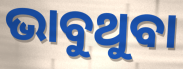
ଭାବୁଥୁବା